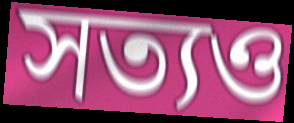
সত্যও